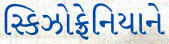
સ્કિઝોફ્રેનિયાને